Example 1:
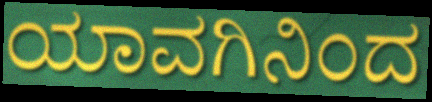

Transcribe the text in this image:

ಯಾವಗಿನಿಂದ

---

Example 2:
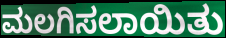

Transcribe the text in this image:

ಮಲಗಿಸಲಾಯಿತು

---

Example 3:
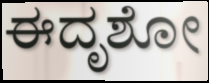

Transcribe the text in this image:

ಈದೃಶೋ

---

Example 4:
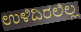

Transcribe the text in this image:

ಉಳಿದಿರಲಿಲ್ಲ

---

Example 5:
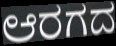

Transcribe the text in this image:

ಆರಗದ